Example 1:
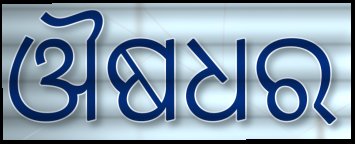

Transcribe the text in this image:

ଔଷଧର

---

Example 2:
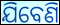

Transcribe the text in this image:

ଯିବେଣି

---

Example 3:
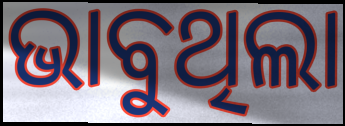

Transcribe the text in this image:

ଭାବୁଥିଲା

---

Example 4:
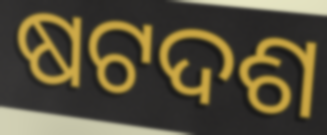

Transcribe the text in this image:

ଷଟଦଶ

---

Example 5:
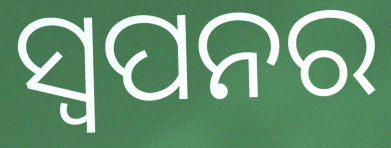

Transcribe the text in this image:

ସ୍ଵପନର